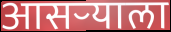
आसऱ्याला